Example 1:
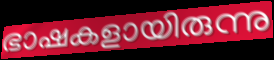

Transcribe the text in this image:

ഭാഷകളായിരുന്നു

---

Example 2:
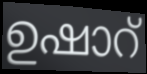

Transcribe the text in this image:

ഉഷാറ്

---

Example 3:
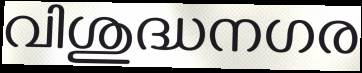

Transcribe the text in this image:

വിശുദ്ധനഗര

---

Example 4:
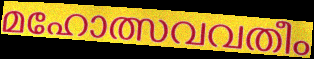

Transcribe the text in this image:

മഹോത്സവവതീം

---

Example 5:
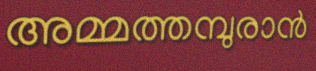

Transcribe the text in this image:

അമ്മത്തമ്പുരാൻ